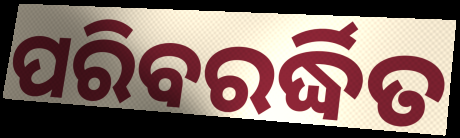
ପରିବରର୍ଦ୍ଧିତ